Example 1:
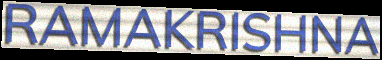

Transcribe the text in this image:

RAMAKRISHNA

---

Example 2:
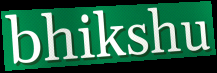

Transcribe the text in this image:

bhikshu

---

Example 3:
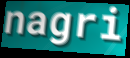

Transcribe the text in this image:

nagri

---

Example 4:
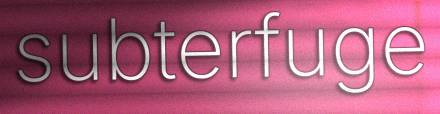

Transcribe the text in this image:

subterfuge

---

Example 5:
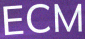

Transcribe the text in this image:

ECM